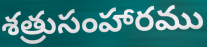
శత్రుసంహారము